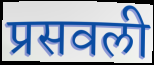
प्रसवली